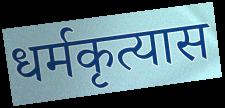
धर्मकृत्यास